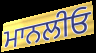
ਮਾਨਲੀਓ